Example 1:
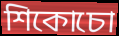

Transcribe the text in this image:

শিকোচো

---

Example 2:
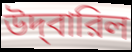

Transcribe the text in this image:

উদ্‌বারিল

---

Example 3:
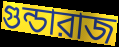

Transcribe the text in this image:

গুন্ডারাজ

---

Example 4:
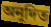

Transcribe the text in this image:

অনুদিত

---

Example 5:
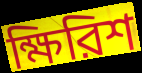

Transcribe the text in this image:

ক্ষিরিশ